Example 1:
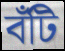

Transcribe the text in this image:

বঁটি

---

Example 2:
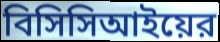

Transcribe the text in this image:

বিসিসিআইয়ের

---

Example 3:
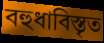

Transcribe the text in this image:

বহুধাবিস্তৃত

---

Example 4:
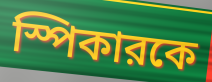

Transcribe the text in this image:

স্পিকারকে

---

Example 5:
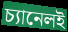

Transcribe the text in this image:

চ্যানেলই